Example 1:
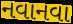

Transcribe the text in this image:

નવાનવા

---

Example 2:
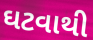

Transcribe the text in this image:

ઘટવાથી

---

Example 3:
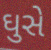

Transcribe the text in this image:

ઘુસે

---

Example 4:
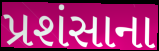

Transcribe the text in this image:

પ્રશંસાના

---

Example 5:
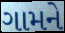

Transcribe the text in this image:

ગામને